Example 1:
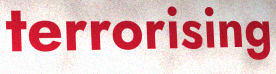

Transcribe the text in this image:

terrorising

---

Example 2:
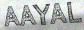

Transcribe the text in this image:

AAYAL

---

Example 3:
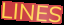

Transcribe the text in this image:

LINES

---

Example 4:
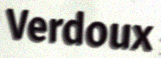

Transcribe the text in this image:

Verdoux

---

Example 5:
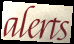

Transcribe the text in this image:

alerts